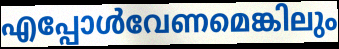
എപ്പോൾവേണമെങ്കിലും